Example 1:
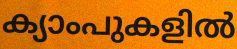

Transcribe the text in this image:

ക്യാംപുകളിൽ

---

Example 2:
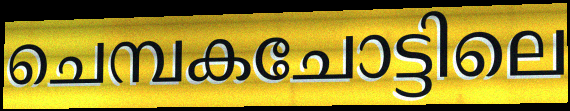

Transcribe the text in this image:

ചെമ്പകചോട്ടിലെ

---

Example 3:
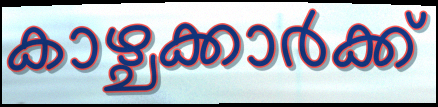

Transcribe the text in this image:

കാഴ്ചക്കാർക്ക്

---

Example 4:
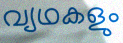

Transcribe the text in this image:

വ്യഥകളും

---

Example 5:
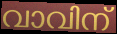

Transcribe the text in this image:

വാവിന്